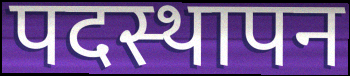
पदस्थापन